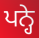
ਪਨ੍ਹੇ